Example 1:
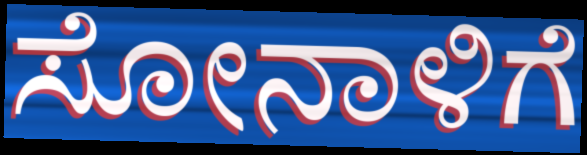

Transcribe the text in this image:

ಸೋನಾಳಿಗೆ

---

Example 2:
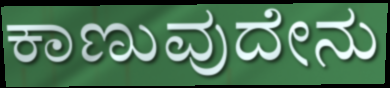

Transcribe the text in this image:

ಕಾಣುವುದೇನು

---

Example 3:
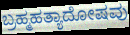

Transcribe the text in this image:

ಬ್ರಹ್ಮಹತ್ಯಾದೋಷವು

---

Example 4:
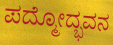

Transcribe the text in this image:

ಪದ್ಮೋದ್ಭವನ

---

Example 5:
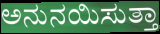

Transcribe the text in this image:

ಅನುನಯಿಸುತ್ತಾ